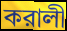
করালী